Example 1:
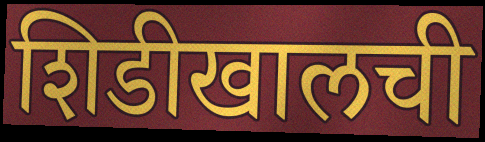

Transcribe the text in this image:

शिडीखालची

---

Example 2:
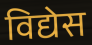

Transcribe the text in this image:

विद्येस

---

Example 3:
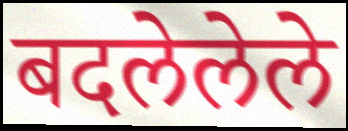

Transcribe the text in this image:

बदलेलेले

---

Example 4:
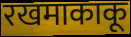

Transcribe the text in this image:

रखमाकाकू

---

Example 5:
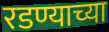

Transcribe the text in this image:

रडण्याच्या